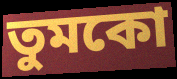
তুমকো